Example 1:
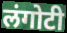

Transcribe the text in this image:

लंगोटी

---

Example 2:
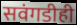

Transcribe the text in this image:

सवंगडीही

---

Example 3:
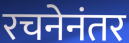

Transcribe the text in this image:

रचनेनंतर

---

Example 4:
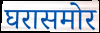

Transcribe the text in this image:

घरासमोर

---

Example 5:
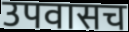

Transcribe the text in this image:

उपवासच